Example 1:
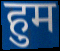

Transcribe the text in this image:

हुम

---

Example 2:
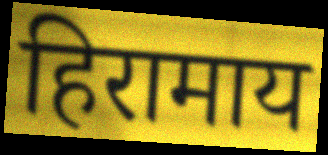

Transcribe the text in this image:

हिरामाय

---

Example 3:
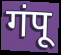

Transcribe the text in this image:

गंपू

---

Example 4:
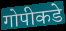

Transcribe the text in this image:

गोपीकडे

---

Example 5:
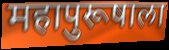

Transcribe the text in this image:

महापुरूषाला